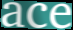
ace